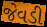
જેવડી